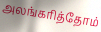
அலங்கரித்தோம்